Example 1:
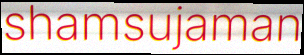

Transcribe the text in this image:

shamsujaman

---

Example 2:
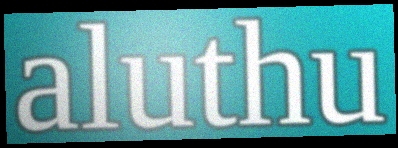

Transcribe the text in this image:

aluthu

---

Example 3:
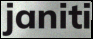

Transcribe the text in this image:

janiti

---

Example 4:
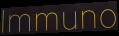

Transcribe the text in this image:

Immuno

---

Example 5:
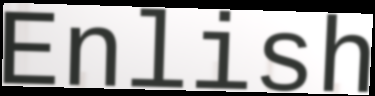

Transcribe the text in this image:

Enlish